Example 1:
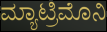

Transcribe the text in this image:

ಮ್ಯಾಟ್ರಿಮೊನಿ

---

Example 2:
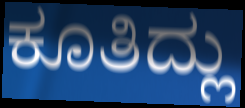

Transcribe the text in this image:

ಕೂತಿದ್ಲು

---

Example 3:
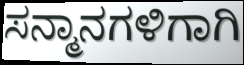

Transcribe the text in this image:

ಸನ್ಮಾನಗಳಿಗಾಗಿ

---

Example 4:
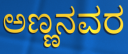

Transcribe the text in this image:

ಅಣ್ಣನವರ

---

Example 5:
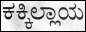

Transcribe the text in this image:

ಕಕ್ಕಿಲ್ಲಾಯ